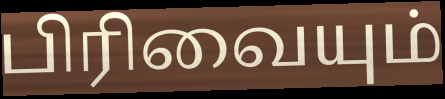
பிரிவையும்